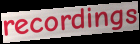
recordings